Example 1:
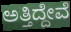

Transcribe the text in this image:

ಅತ್ತಿದ್ದೇವೆ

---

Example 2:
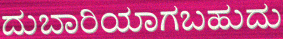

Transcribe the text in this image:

ದುಬಾರಿಯಾಗಬಹುದು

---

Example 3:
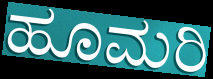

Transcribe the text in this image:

ಹೂಮರಿ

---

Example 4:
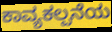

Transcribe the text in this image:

ಕಾವ್ಯಕಲ್ಪನೆಯ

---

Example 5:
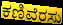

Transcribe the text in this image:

ಕಣಿವೆರಸು